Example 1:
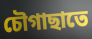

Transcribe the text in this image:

চৌগাছাতে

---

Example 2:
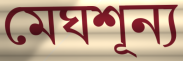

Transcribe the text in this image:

মেঘশূন্য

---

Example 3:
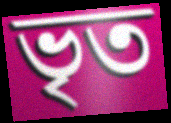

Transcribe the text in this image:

ভৃত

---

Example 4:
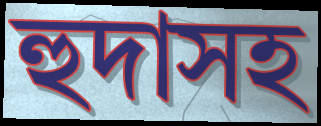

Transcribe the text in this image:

হুদাসহ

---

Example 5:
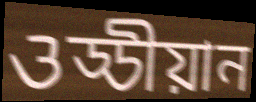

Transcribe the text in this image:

ওড্ডীয়ান